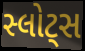
સ્લોટ્સ